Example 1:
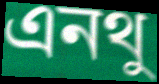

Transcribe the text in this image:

এনথু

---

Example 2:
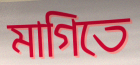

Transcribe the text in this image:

মাগিতে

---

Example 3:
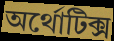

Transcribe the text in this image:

অর্থোটিক্স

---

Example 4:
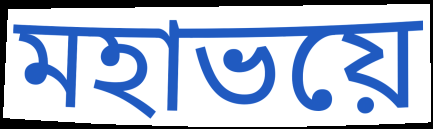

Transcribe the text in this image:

মহাভয়ে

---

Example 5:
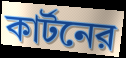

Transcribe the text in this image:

কার্টনের